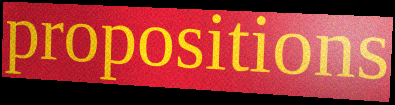
propositions